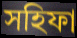
সহিফা